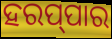
ହରପ୍‌ପାର